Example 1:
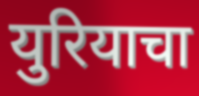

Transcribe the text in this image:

युरियाचा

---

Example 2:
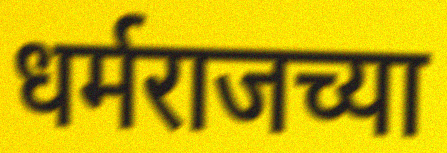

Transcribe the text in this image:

धर्मराजच्या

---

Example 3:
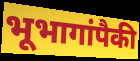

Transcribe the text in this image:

भूभागांपैकी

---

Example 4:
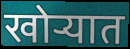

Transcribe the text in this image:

खोऱ्यात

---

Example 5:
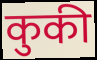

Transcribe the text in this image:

कुकी